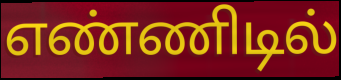
எண்ணிடில்